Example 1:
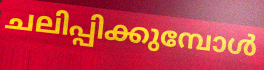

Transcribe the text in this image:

ചലിപ്പിക്കുമ്പോൾ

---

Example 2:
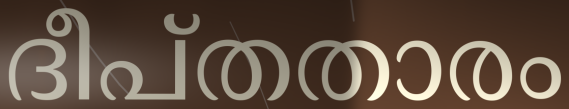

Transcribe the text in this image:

ദീപ്തതാരം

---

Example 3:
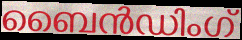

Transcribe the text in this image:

ബൈൻഡിംഗ്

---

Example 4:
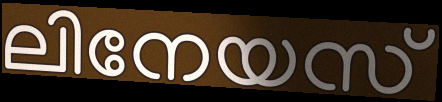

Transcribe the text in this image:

ലിനേയസ്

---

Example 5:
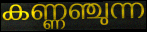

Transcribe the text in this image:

കണ്ണഞ്ചുന്ന